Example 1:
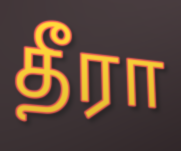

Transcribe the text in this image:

தீரா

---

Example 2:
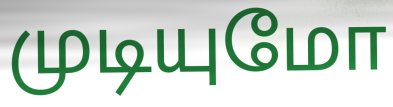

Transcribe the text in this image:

முடியுமோ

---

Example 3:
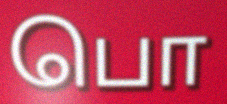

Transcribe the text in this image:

பொ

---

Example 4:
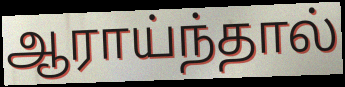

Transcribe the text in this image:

ஆராய்ந்தால்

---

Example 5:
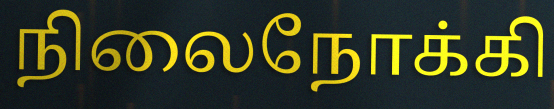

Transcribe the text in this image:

நிலைநோக்கி